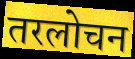
तरलोचन